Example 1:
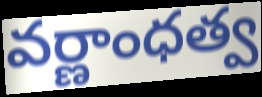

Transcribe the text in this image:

వర్ణాంధత్వ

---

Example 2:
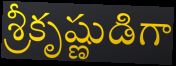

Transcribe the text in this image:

శ్రీకృష్ణుడిగా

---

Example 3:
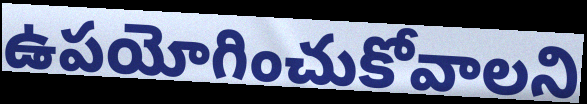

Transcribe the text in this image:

ఉపయోగించుకోవాలని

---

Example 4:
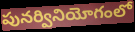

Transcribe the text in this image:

పునర్వినియోగంలో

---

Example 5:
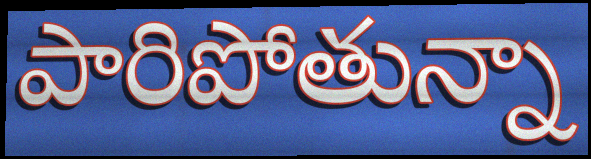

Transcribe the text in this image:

పారిపోతున్నా